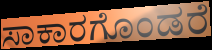
ಸಾಕಾರಗೊಂಡರೆ